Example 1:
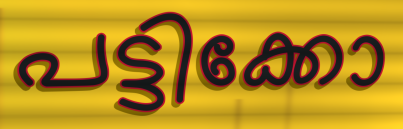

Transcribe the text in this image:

പട്ടിക്കോ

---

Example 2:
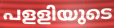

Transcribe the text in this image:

പളളിയുടെ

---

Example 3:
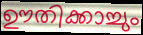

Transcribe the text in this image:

ഊതിക്കാച്ചും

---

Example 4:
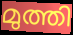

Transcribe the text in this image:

മുത്തി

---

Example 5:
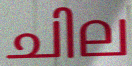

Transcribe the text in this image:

ചില